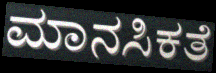
ಮಾನಸಿಕತೆ